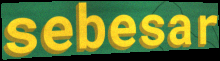
sebesar